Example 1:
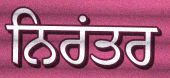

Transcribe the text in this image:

ਨਿਰਂਤਰ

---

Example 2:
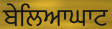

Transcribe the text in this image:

ਬੇਲਿਆਘਾਟ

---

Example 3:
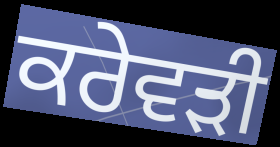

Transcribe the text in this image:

ਕਰੇਵੜੀ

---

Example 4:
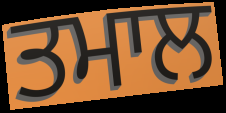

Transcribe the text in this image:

ਤਮਾਲ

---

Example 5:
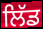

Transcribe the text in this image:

ਲਿੱਡ